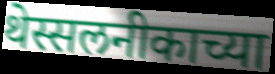
थेस्सलनीकाच्या